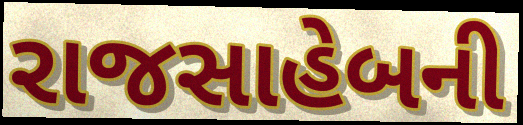
રાજસાહેબની